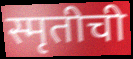
स्मृतीची